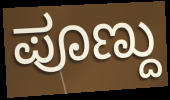
ಪೂಣ್ದು